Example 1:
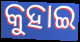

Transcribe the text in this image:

କୁହାଇ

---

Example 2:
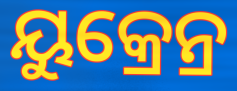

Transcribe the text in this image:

ୟୁକ୍ରେନ୍ର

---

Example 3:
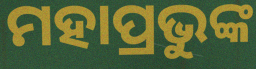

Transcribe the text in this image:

ମହାପ୍ରଭୁଙ୍କ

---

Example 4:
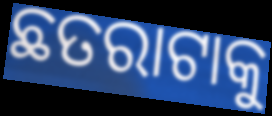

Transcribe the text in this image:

ଛତରାଟାକୁ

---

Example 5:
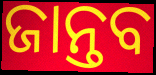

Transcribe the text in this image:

ଜାନ୍ତବ